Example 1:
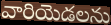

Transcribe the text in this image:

వారియెడలను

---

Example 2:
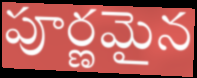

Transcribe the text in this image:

పూర్ణమైన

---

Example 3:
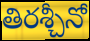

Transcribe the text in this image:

తిరశ్చీనో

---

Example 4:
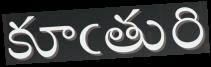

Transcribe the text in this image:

కూఁతురి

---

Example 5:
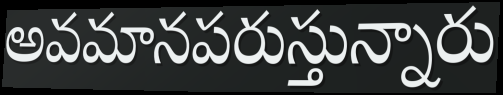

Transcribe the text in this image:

అవమానపరుస్తున్నారు